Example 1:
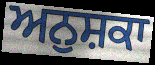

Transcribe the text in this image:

ਅਨੁਸ਼ਕਾ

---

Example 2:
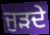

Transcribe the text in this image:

ਜੁੜਦੇ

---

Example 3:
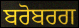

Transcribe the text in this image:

ਬਰੋਬਰਗ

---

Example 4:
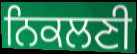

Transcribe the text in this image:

ਨਿਕਲਣੀ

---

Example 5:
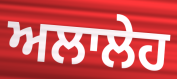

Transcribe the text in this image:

ਅਲਾਲੇਹ